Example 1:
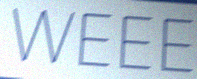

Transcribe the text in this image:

WEEE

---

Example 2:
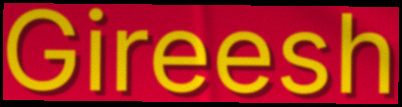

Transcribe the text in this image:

Gireesh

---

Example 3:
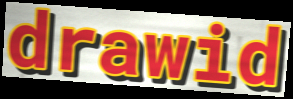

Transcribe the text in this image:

drawid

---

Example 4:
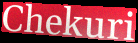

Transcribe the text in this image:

Chekuri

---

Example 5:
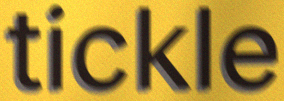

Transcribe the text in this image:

tickle